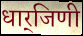
धार्जिणी